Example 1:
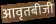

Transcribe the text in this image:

आवृतबीजी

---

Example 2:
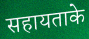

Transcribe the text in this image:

सहायताके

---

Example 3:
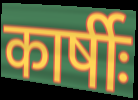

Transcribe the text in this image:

कार्षीः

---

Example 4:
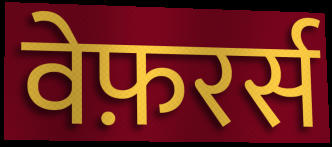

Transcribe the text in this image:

वेफ़रर्स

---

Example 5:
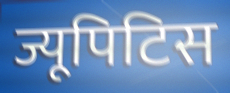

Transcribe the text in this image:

ज्यूपिटिस